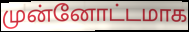
முன்னோட்டமாக